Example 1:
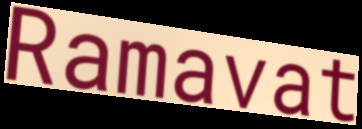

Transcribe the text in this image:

Ramavat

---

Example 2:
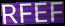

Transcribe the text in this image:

RFEF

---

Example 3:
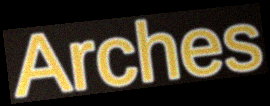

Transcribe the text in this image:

Arches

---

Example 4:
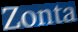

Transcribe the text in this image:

Zonta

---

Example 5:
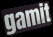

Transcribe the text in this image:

gamit